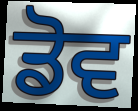
ਡੋਵ